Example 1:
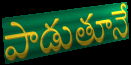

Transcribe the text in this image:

పాడుతూనే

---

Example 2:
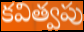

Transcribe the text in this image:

కవిత్వపు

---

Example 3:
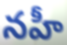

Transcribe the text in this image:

నహీ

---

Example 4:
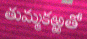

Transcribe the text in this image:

తుమ్మకఱ్ఱతో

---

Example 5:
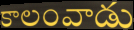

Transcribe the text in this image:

కాలంవాడు